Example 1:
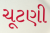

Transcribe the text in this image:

ચૂટણી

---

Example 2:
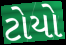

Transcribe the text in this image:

ટોયો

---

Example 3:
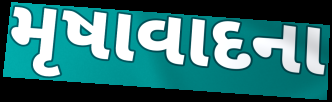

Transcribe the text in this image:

મૃષાવાદના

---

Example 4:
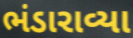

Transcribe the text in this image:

ભંડારાવ્યા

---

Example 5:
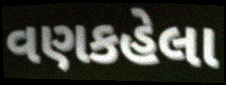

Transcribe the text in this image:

વણકહેલા